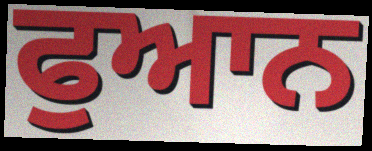
ਫੁਆਨ